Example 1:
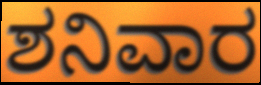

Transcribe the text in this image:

ಶನಿವಾರ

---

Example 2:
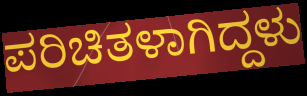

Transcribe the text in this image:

ಪರಿಚಿತಳಾಗಿದ್ದಳು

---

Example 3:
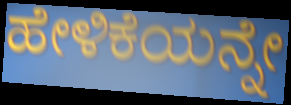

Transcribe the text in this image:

ಹೇಳಿಕೆಯನ್ನೇ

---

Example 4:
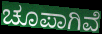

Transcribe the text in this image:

ಚೂಪಾಗಿವೆ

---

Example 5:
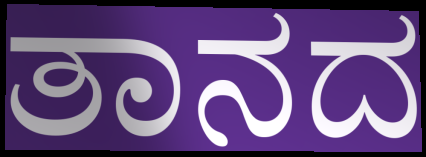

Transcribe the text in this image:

ತಾನದ